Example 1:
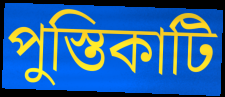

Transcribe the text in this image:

পুস্তিকাটি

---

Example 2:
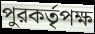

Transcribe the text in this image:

পুরকর্তৃপক্ষ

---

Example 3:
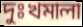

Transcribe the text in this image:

দুঃখমালা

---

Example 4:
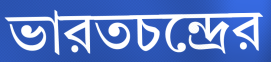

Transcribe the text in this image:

ভারতচন্দ্রের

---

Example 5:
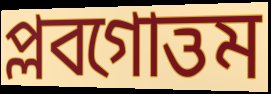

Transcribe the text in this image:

প্লবগোত্তম